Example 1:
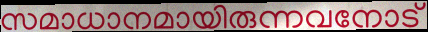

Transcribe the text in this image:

സമാധാനമായിരുന്നവനോട്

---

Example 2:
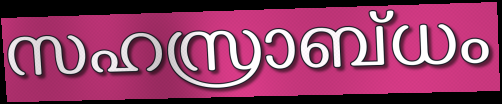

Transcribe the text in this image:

സഹസ്രാബ്ധം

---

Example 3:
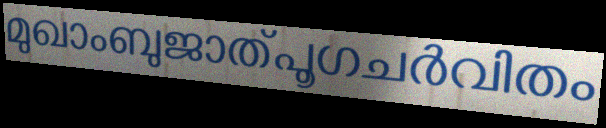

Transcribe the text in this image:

മുഖാംബുജാത്പൂഗചർവിതം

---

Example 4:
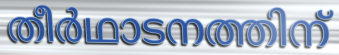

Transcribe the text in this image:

തീർഥാടനത്തിന്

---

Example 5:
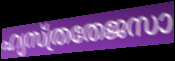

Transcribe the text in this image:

ഹ്യസ്ത്രതേജസാ